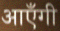
आएँगी